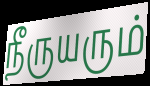
நீருயரும்